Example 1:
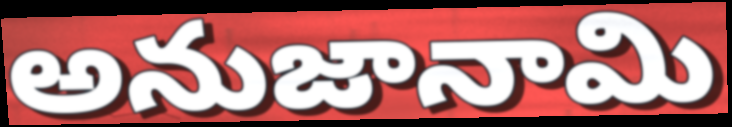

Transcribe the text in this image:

అనుజానామి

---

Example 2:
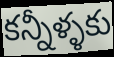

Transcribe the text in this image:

కన్నీళ్ళకు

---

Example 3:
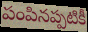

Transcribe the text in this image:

పంపినప్పటికీ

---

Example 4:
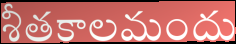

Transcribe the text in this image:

శీతకాలమందు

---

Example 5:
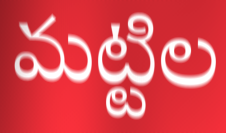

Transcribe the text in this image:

మట్టిల